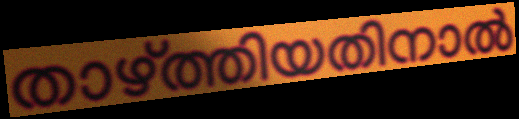
താഴ്ത്തിയതിനാൽ